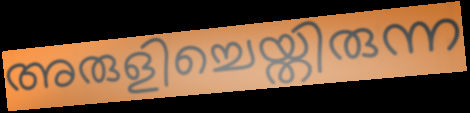
അരുളിച്ചെയ്തിരുന്ന